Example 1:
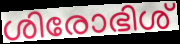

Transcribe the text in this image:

ശിരോഭിശ്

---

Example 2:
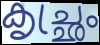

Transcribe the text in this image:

കൃച്ഛ്രം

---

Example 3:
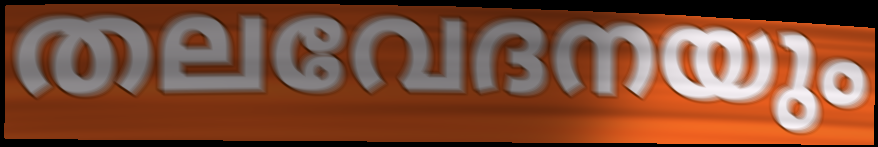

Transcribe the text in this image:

തലവേദനയും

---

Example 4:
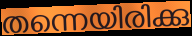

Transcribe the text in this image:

തന്നെയിരിക്കു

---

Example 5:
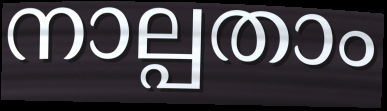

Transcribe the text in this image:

നാല്പതാം